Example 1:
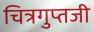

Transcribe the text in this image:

चित्रगुप्तजी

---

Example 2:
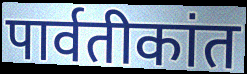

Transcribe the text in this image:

पार्वतीकांत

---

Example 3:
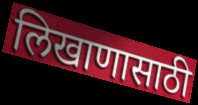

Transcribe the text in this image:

लिखाणासाठी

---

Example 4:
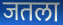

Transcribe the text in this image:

जतला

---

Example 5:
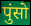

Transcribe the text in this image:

पुंसो